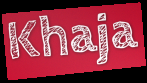
Khaja